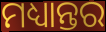
ମଧ୍ୟାନ୍ତର